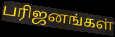
பரிஜனங்கள்